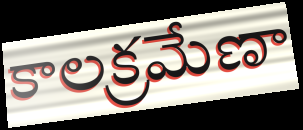
కాలక్రమేణా